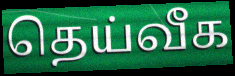
தெய்வீக